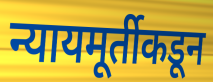
न्यायमूर्तीकडून